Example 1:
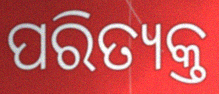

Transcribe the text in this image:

ପରିତ୍ୟକ୍ତ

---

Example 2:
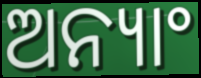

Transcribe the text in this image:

ଅନ୍ୟାଂ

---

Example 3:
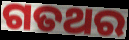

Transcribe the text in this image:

ଗତଥର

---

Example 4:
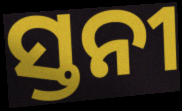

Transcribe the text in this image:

ସ୍ତନୀ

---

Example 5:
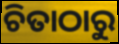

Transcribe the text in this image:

ଚିତାଠାରୁ